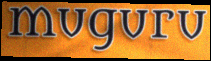
muguru